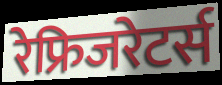
रेफ्रिजरेटर्स